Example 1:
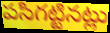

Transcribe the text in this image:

పసిగట్టినట్లు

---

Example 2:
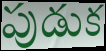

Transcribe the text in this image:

పుడుక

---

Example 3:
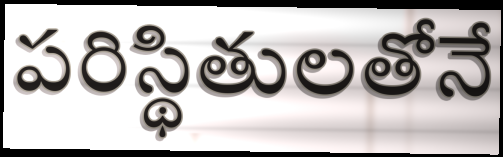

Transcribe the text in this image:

పరిస్థితులతోనే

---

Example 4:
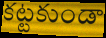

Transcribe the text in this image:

కట్టకుండా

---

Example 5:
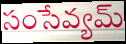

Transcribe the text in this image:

సంసేవ్యమ్